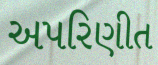
અપરિણીત